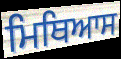
ਮਿਥਿਆਸ